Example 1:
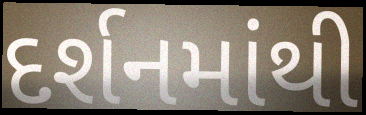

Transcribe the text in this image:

દર્શનમાંથી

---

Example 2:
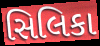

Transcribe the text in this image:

સિલિકા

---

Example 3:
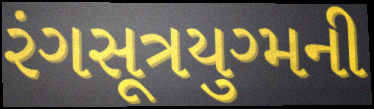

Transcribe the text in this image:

રંગસૂત્રયુગ્મની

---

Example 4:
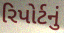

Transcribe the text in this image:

રિપોર્ટનું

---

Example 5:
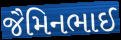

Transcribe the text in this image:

જૈમિનભાઈ